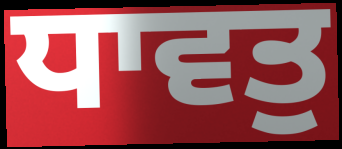
ਧਾਵਤੁ